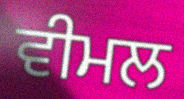
ਵੀਮਲ